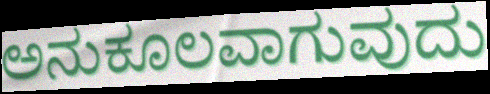
ಅನುಕೂಲವಾಗುವುದು